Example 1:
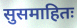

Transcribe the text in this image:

सुसमाहितः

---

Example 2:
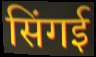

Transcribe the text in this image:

सिंगई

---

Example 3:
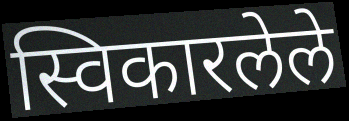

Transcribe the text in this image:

स्विकारलेले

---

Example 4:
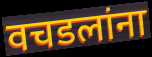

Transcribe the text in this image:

वचडलांना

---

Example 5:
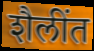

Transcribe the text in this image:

शैलींत